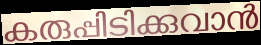
കരുപ്പിടിക്കുവാൻ